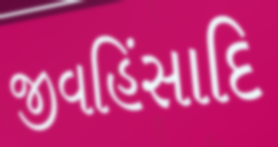
જીવહિંસાદિ